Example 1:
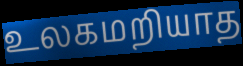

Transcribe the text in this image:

உலகமறியாத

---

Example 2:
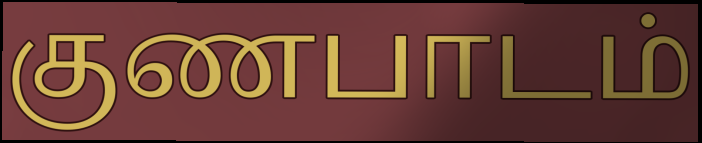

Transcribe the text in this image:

குணபாடம்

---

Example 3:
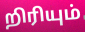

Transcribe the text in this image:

றிரியும்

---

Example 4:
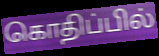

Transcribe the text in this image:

கொதிப்பில்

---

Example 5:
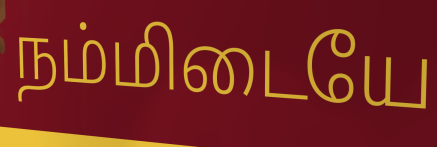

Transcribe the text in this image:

நம்மிடையே